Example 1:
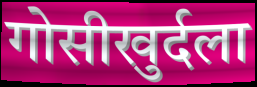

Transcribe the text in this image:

गोसीखुर्दला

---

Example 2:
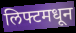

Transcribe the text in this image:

लिफ्टमधून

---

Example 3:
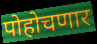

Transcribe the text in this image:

पोहोचणार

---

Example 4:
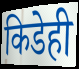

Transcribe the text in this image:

किडेही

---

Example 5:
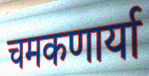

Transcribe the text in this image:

चमकणार्या